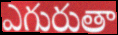
ఎగురుతా